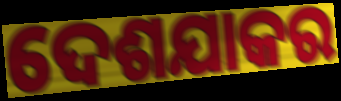
ଦେଶଯାକର